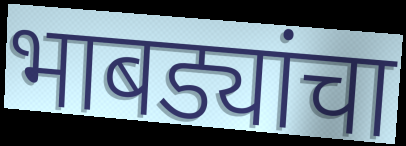
भाबड्यांचा